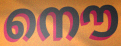
നൌ